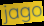
jago